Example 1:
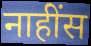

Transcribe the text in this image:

नाहींस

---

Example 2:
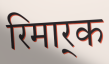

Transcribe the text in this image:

रिमार्क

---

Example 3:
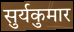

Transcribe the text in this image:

सुर्यकुमार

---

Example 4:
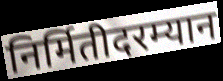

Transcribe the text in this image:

निर्मितीदरम्यान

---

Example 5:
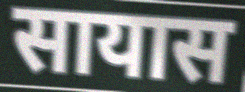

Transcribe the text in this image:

सायास